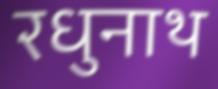
रधुनाथ